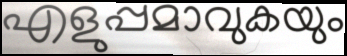
എളുപ്പമാവുകയും